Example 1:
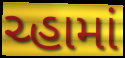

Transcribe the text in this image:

ચ્હામાં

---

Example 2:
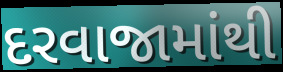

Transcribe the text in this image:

દરવાજામાંથી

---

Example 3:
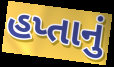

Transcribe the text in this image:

હપ્તાનું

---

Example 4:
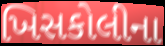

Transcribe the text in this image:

ખિસકોલીના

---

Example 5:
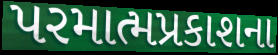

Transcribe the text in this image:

પરમાત્મપ્રકાશના